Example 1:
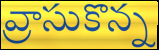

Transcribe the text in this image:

వ్రాసుకొన్న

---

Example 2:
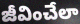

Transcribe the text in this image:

జీవించేలా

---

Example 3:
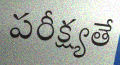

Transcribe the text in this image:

పరీక్ష్యతే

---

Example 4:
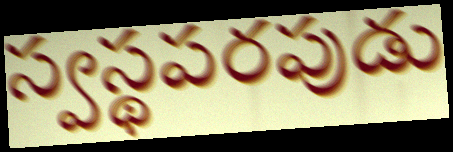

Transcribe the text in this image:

స్వస్థపరపుడు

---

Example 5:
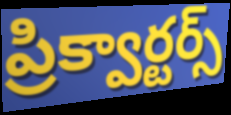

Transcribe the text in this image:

ప్రిక్వార్టర్స్